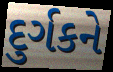
દુર્ગકને